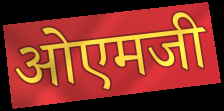
ओएमजी